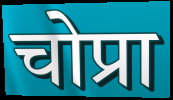
चोप्रा